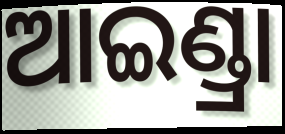
ଆଇଣ୍ଡ୍ରା